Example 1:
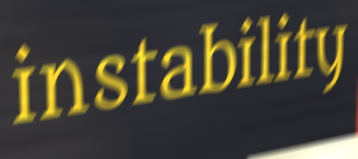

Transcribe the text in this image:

instability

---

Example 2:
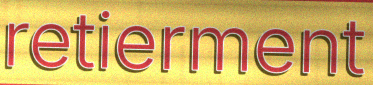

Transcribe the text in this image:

retierment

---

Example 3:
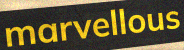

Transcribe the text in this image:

marvellous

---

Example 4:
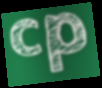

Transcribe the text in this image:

cp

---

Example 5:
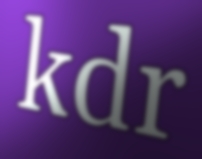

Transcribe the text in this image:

kdr